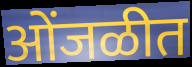
ओंजळीत